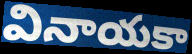
వినాయకా